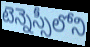
టెన్నెస్సీలోని